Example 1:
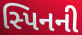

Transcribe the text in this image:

સ્પિનની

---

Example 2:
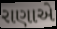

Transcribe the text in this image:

રાણાએ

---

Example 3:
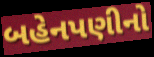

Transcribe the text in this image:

બહેનપણીનો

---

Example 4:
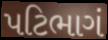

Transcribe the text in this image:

પટિભાગં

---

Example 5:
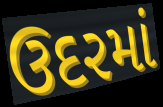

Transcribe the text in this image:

ઉદરમાં